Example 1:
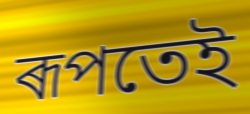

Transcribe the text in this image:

ৰূপতেই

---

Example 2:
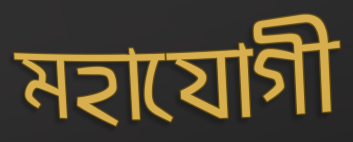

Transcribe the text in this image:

মহাযোগী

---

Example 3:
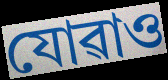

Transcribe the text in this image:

যোৱাও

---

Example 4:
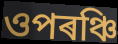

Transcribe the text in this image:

ওপৰঞ্চি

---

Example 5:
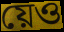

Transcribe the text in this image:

য়েও